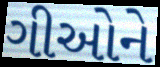
ગીઓને